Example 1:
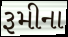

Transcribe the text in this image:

રૂમીના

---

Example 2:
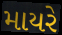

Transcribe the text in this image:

માયરે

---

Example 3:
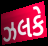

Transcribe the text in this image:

ઝલકે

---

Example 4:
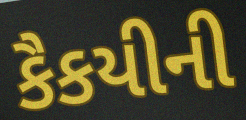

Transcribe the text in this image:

કૈકયીની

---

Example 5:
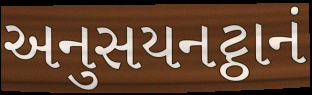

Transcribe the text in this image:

અનુસયનટ્ઠાનં